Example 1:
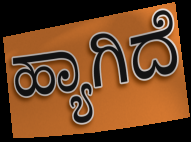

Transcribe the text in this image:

ಹ್ಯಾಗಿದೆ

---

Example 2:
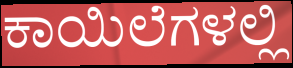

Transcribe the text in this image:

ಕಾಯಿಲೆಗಳಲ್ಲಿ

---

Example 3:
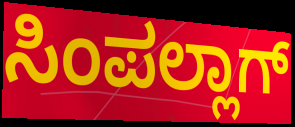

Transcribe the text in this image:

ಸಿಂಪಲ್ಲಾಗ್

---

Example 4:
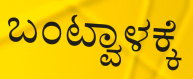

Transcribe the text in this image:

ಬಂಟ್ವಾಳಕ್ಕೆ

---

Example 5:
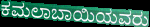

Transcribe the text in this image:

ಕಮಲಾಬಾಯಿಯವರು